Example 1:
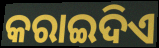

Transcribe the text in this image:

କରାଇଦିଏ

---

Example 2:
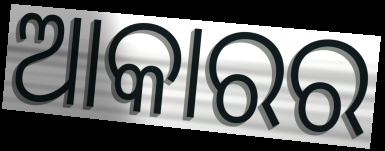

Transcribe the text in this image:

ଆକାରର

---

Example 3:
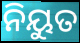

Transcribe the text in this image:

ନିୟୁତ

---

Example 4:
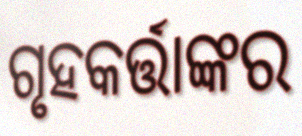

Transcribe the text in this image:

ଗୃହକର୍ତ୍ତାଙ୍କର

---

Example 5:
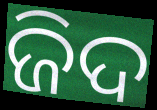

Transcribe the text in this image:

ଜିଦ